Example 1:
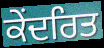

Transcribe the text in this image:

ਕੇਂਦਰਿਤ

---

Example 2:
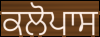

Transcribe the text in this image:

ਕਲੋਪਾਸ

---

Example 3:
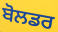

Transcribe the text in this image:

ਬੋਲਡਰ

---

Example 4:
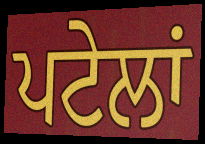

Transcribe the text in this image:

ਪਟੇਲਾਂ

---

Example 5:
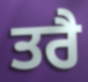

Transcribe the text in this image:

ਤਰੈ